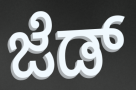
ಜೆಡ್